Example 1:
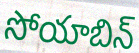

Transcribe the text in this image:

సోయాబిన్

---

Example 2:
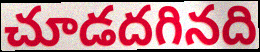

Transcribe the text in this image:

చూడదగినది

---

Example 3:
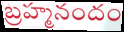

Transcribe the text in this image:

బ్రహ్మనందం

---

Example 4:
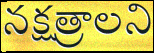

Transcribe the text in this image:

నక్షత్రాలని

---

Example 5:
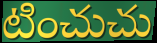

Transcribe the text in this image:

టించుచు